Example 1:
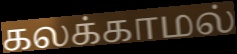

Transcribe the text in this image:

கலக்காமல்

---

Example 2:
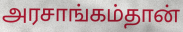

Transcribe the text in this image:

அரசாங்கம்தான்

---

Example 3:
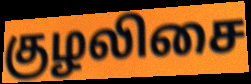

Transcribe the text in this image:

குழலிசை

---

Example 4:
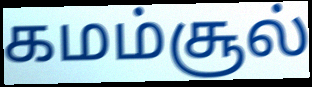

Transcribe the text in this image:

கமம்சூல்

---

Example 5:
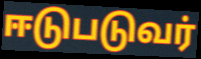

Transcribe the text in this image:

ஈடுபடுவர்